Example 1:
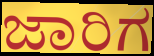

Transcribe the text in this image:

ಜಾರಿಗ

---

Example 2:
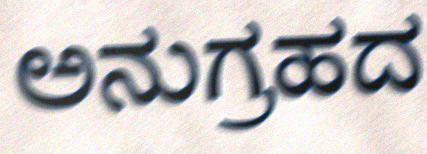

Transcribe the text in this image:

ಅನುಗ್ರಹದ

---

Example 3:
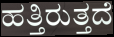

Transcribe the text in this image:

ಹತ್ತಿರುತ್ತದೆ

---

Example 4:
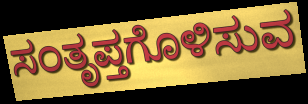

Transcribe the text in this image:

ಸಂತೃಪ್ತಗೊಳಿಸುವ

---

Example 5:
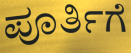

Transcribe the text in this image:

ಪೂರ್ತಿಗೆ